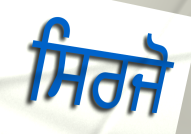
ਸਿਰਜੋ